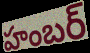
హంబర్